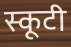
स्कूटी